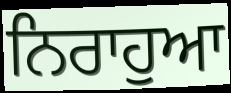
ਨਿਰਾਹੁਆ